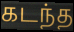
கடந்த